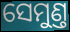
ସେମୁଣ୍ତ